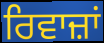
ਰਿਵਾਜ਼ਾਂ